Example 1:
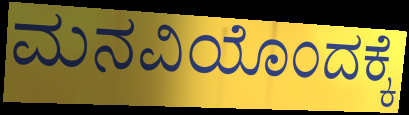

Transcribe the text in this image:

ಮನವಿಯೊಂದಕ್ಕೆ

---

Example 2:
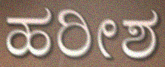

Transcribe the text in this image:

ಹರೀಶ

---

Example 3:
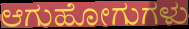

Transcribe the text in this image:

ಆಗುಹೋಗುಗಳು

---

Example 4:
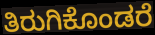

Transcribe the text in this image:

ತಿರುಗಿಕೊಂಡರೆ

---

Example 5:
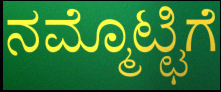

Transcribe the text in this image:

ನಮ್ಮೊಟ್ಟಿಗೆ